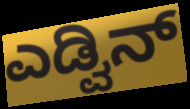
ಎಡ್ವಿನ್